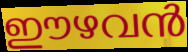
ഈഴവൻ